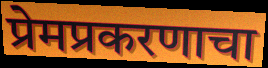
प्रेमप्रकरणाचा